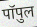
पॉपुल